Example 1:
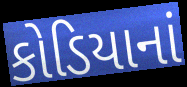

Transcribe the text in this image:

કોડિયાનાં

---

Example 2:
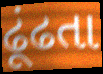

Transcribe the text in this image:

ઢૂંઢતા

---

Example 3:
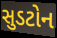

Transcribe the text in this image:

સુડટોન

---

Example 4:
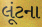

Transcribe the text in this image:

લૂંટના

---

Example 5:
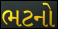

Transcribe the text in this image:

ભટનો